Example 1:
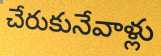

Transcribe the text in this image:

చేరుకునేవాళ్లు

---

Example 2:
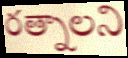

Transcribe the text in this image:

రత్నాలని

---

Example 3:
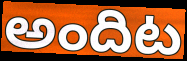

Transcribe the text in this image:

అందిట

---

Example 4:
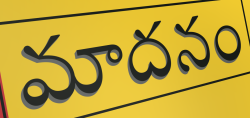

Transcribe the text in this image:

మాదనం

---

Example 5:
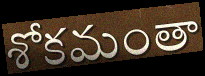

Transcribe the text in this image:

శోకమంతా